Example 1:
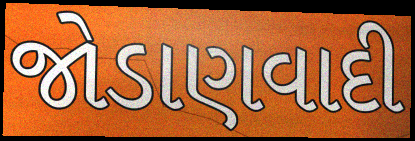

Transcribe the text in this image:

જોડાણવાદી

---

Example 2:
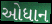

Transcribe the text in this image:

ઓધાન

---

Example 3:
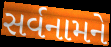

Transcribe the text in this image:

સર્વનામને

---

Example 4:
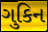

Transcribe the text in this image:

ગુકિન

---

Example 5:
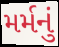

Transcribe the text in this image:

મર્મનું